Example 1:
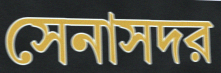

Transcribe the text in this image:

সেনাসদর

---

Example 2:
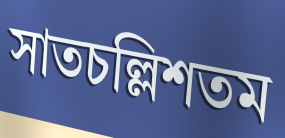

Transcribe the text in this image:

সাতচল্লিশতম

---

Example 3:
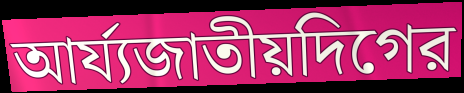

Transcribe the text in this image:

আর্য্যজাতীয়দিগের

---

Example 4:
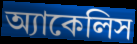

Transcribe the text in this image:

অ্যাকেলিস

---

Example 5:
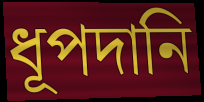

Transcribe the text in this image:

ধূপদানি